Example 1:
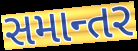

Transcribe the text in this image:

સમાન્તર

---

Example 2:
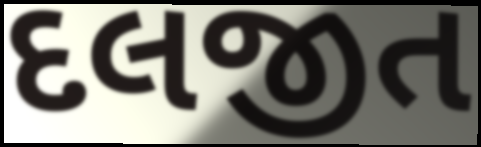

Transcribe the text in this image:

દલજીત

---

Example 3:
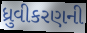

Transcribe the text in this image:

ધ્રુવીકરણની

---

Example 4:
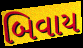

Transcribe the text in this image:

બિવાય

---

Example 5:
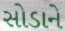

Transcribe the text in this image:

સોડાને